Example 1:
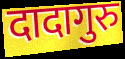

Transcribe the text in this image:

दादागुरु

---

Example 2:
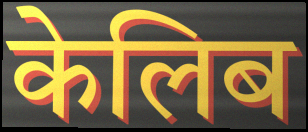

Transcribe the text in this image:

केलिब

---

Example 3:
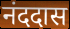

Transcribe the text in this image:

नंददास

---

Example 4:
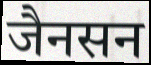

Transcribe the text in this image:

जैनसन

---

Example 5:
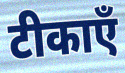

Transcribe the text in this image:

टीकाएँ